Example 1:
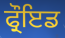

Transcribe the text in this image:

ਫ੍ਰੌਇਡ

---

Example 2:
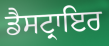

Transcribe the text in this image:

ਡੈਸਟ੍ਰਾਇਰ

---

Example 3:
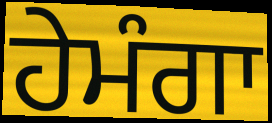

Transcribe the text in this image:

ਹੇਮੰਗਾ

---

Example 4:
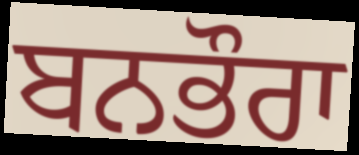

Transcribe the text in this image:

ਬਨਭੌਰਾ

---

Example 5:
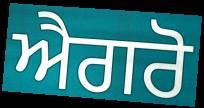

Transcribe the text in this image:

ਐਗਰੋ